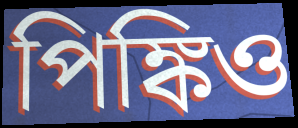
পিঙ্কিও